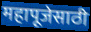
महापूजेसाठी